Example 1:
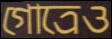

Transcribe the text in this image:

গোত্রেও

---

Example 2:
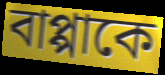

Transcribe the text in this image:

বাপ্পাকে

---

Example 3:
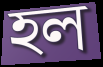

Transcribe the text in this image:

হল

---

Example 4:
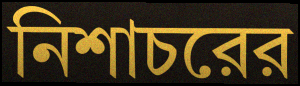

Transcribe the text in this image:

নিশাচরের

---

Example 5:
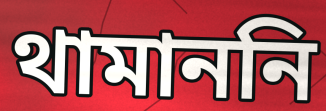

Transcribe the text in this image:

থামাননি